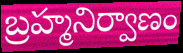
బ్రహ్మనిర్వాణం